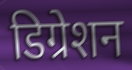
डिग्रेशन